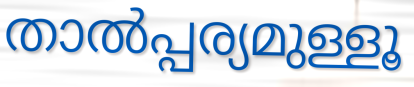
താൽപ്പര്യമുള്ളൂ